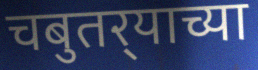
चबुतर्‍याच्या